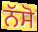
ਨੱਸੋ